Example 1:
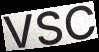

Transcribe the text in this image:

VSC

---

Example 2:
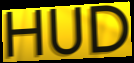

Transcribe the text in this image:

HUD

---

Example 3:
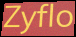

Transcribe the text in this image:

Zyflo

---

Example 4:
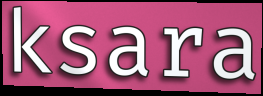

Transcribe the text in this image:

ksara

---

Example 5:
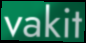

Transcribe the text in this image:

vakit